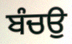
ਬੰਚਉ